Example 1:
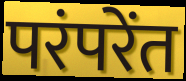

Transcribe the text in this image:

परंपरेंत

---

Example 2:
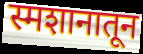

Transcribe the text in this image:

स्मशानातून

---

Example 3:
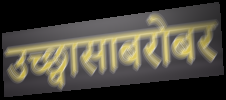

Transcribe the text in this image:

उच्छ्वासाबरोबर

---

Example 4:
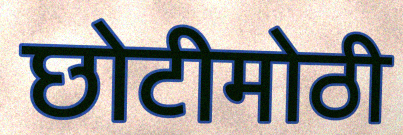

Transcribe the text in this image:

छोटीमोठी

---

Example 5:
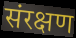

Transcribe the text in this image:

संरक्षण